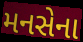
મનસેના